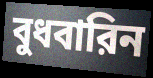
বুধবারিন